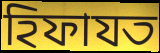
হিফাযত